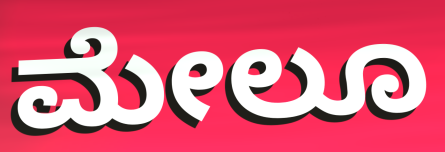
ಮೇಲೂ